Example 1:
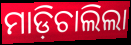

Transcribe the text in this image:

ମାଡ଼ିଚାଲିଲା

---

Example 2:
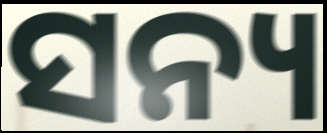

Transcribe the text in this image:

ସନ୍ୟ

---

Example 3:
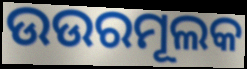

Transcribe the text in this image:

ଉଉରମୂଲକ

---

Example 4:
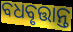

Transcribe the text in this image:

ବଧବୃତ୍ତାନ୍ତ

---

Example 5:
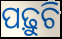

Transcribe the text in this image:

ପଢ଼ୁଚି